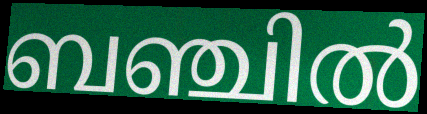
ബഞ്ചിൽ